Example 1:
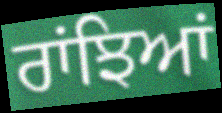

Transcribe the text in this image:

ਰਾਂਝਿਆਂ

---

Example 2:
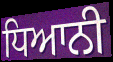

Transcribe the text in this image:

ਧਿਆਨੀ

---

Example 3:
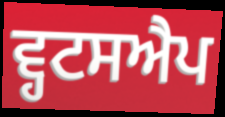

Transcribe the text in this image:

ਵ੍ਹਟਸਐਪ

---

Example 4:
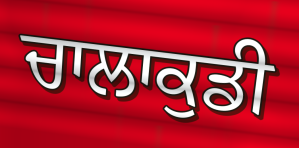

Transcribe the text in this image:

ਚਾਲਾਕੁਡੀ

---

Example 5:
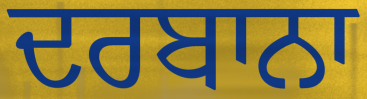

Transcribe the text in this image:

ਦਰਬਾਨਾ